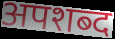
अपशब्‍द